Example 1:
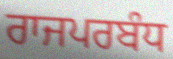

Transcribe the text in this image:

ਰਾਜਪਰਬੰਧ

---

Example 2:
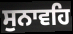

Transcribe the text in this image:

ਸੁਨਾਵਹਿ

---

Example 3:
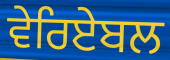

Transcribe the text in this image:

ਵੇਰਿਏਬਲ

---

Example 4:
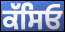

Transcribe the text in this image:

ਕੱਸਿਓ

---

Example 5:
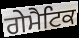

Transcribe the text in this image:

ਗੇਮੈਟਿਕ